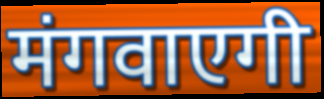
मंगवाएगी